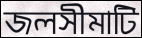
জলসীমাটি